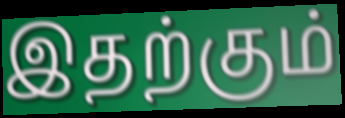
இதற்கும்